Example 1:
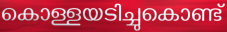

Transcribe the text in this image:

കൊള്ളയടിച്ചുകൊണ്ട്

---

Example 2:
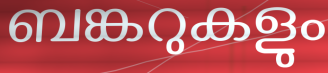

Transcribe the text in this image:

ബങ്കറുകളും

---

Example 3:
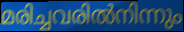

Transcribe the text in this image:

മരിച്ചവരിൽനിന്നും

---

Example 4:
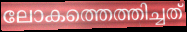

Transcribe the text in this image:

ലോകത്തെത്തിച്ചത്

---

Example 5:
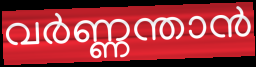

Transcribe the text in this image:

വർണ്ണന്താൻ